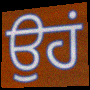
ਉਹਂ